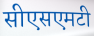
सीएसएमटी